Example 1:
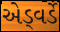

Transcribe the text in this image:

એડ્વર્ડે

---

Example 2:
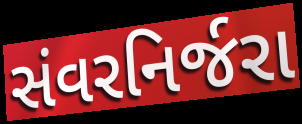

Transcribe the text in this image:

સંવરનિર્જરા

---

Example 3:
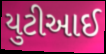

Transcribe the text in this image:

યુટીઆઈ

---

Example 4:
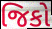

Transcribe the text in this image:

જિકો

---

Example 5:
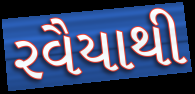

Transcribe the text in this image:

રવૈયાથી